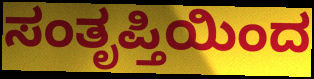
ಸಂತೃಪ್ತಿಯಿಂದ